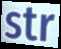
str